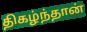
திகழ்ந்தான்